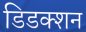
डिडक्शन